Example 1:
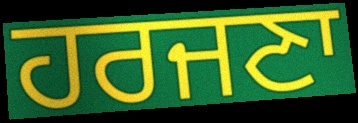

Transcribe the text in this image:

ਹਰਜਣਾ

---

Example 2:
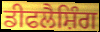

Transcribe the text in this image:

ਡੀਫਲੈਸ਼ਿੰਗ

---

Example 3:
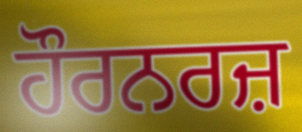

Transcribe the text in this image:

ਹੌਰਨਰਜ਼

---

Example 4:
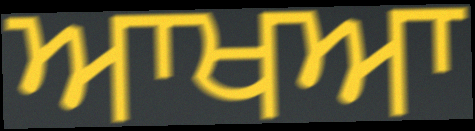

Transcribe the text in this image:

ਆਖਆ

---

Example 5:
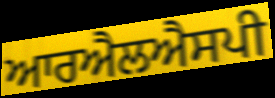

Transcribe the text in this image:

ਆਰਐਲਐਸਪੀ